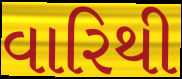
વારિથી